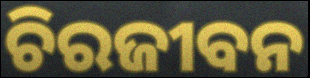
ଚିରଜୀବନ